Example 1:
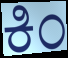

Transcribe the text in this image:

ಕಿಂ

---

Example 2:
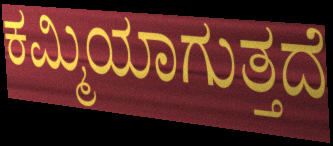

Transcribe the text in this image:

ಕಮ್ಮಿಯಾಗುತ್ತದೆ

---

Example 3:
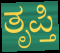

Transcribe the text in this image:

ತೃಪ್ತಿ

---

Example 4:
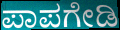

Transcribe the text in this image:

ಪಾಪಗೇಡಿ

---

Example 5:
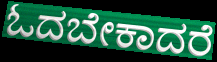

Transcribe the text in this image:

ಓದಬೇಕಾದರೆ